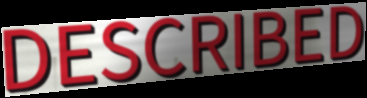
DESCRIBED